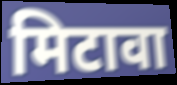
मिटावा